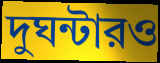
দুঘন্টারও